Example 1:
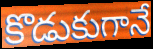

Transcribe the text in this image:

కొడుకుగానే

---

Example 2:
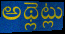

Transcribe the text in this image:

అథ్లెట్లు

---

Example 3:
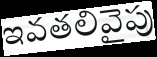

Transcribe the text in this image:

ఇవతలివైపు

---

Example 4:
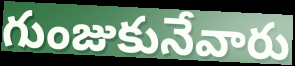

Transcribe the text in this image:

గుంజుకునేవారు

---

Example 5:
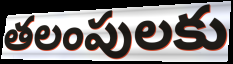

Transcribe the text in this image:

తలంపులకు